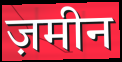
ज़मीन